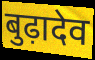
बुढ़ादेव